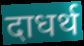
दाधर्थ